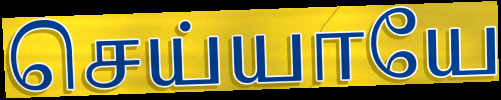
செய்யாயே